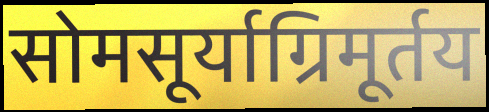
सोमसूर्याग्रिमूर्तय